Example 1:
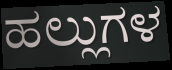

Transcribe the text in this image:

ಹಲ್ಲುಗಳ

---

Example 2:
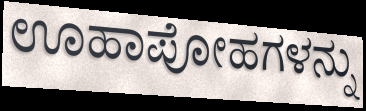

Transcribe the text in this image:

ಊಹಾಪೋಹಗಳನ್ನು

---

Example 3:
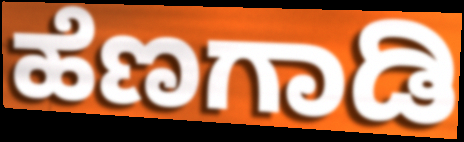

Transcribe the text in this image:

ಹೆಣಗಾಡಿ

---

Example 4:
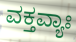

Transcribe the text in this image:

ವಕ್ತವ್ಯಾಃ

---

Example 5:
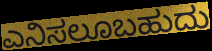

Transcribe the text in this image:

ಎನಿಸಲೂಬಹುದು